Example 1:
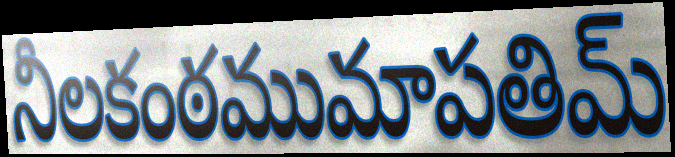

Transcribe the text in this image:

నీలకంఠముమాపతిమ్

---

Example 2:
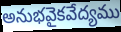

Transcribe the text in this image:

అనుభవైకవేద్యము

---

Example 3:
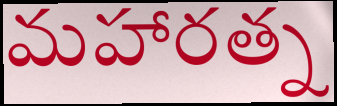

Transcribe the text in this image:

మహారత్న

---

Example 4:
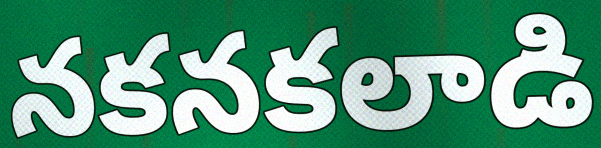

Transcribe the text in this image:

నకనకలాడి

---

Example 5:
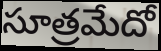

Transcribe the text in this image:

సూత్రమేదో